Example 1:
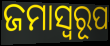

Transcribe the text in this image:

ଜମାସ୍ବରୂପ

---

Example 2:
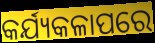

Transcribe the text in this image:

କର୍ଯ୍ୟକଳାପରେ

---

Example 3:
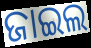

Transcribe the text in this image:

ଜାଇଲ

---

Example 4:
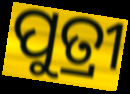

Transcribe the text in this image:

ପୁତ୍ରୀ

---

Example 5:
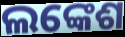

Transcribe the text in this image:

ଲଙ୍କେଶ